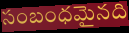
సంబంధమైనది